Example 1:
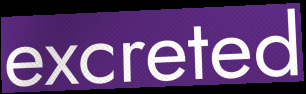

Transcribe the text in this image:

excreted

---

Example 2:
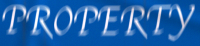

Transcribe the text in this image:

PROPERTY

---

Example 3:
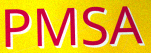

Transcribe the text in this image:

PMSA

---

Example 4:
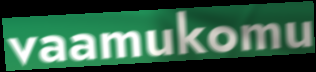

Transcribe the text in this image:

vaamukomu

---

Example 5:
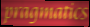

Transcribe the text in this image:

pragmatics